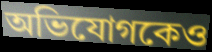
অভিযোগকেও